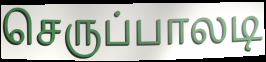
செருப்பாலடி